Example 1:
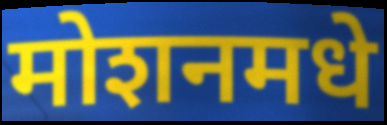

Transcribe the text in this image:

मोशनमधे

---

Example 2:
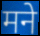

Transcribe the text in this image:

मने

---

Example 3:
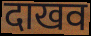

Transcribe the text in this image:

दाखव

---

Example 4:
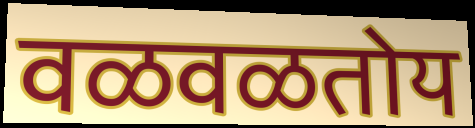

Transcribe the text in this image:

वळवळतोय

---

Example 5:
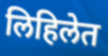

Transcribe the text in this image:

लिहिलेत